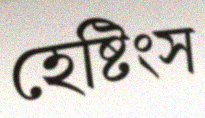
হেষ্টিংস